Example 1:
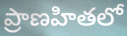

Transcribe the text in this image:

ప్రాణహితలో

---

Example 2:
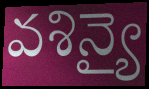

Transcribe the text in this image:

వశిన్యై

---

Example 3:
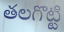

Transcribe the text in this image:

తలగొట్టి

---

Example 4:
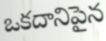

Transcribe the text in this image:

ఒకదానిపైన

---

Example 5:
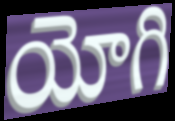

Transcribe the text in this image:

యోగి